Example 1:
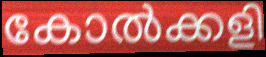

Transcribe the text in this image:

കോൽക്കളി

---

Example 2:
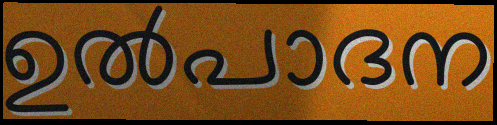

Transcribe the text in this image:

ഉൽപാദന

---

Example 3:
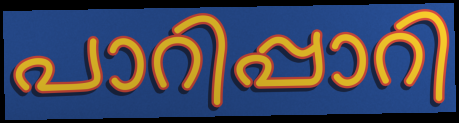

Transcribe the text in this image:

പാറിപ്പാറി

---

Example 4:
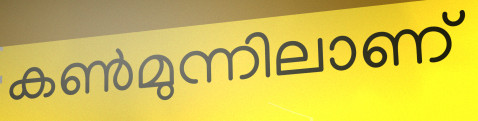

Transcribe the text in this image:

കൺമുന്നിലാണ്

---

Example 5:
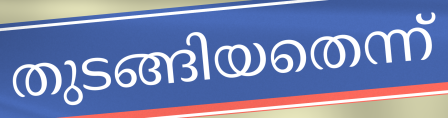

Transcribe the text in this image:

തുടങ്ങിയതെന്ന്